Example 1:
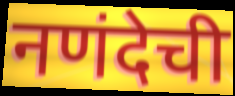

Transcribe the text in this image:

नणंदेची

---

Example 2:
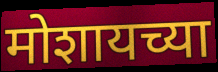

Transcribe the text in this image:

मोशायच्या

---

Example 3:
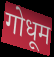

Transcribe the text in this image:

गोधूम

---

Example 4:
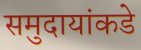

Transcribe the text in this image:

समुदायांकडे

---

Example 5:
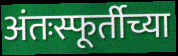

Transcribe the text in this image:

अंतःस्फूर्तीच्या